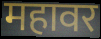
महावर